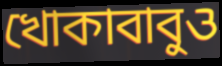
খোকাবাবুও